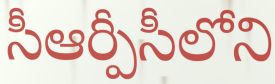
సీఆర్పీసీలోని